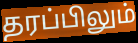
தரப்பிலும்